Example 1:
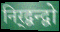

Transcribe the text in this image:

निर्द्वन्द्वो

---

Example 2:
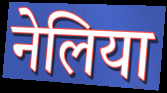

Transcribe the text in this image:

नेलिया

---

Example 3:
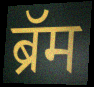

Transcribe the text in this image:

ब्रॅम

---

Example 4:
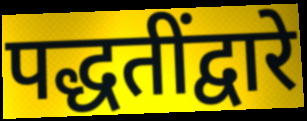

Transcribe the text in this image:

पद्धतींद्वारे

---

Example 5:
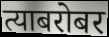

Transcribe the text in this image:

त्याबरोबर